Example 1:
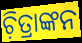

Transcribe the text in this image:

ଚ଼ିତ୍ରାଙ୍କନ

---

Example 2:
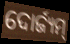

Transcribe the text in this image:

ଦୋର୍ଜ୍ୟମ୍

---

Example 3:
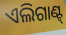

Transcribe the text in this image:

ଏଲିଗାଣ୍ଟ୍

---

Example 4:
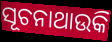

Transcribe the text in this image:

ସୂଚନାଥାଉକି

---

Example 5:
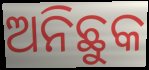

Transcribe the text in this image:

ଅନିଛୁକ